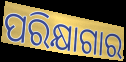
ପରିକ୍ଷାଗାର